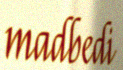
madbedi